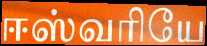
ஈஸ்வரியே